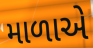
માળાએ